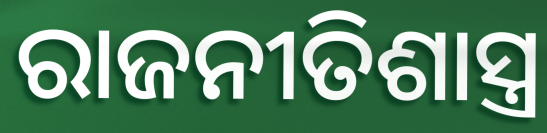
ରାଜନୀତିଶାସ୍ତ୍ର